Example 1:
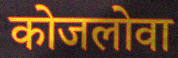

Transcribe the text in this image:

कोजलोवा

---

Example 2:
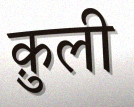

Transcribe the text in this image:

क़ुली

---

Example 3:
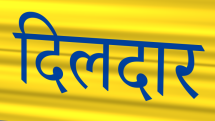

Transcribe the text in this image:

दिलदार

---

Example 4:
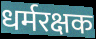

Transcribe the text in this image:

धर्मरक्षक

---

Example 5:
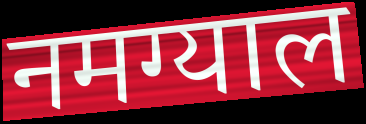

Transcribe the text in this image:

नमग्याल